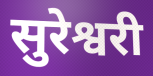
सुरेश्वरी